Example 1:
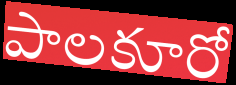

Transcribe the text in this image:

పాలకూరో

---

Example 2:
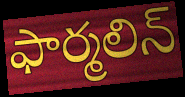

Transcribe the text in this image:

ఫార్మలిన్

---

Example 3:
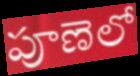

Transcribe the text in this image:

పూణెలో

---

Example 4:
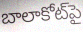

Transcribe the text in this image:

బాలాకోట్‌పై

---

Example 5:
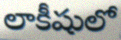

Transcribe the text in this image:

లాకీషులో